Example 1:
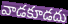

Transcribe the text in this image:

వాడకూడదు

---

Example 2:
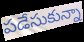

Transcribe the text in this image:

పడేసుకున్నా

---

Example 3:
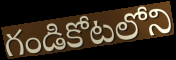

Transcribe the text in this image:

గండికోటలోని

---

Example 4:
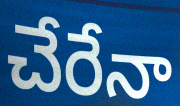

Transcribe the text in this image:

చేరేనా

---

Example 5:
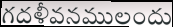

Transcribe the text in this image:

గదళీవనములందు